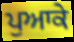
ਪੁਆਕੇ